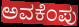
ಅವಕೆಂಪು